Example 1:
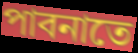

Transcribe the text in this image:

পাবনাতে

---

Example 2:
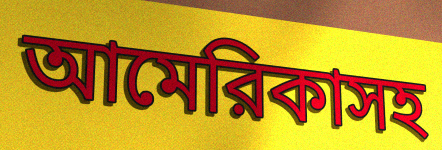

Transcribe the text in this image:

আমেরিকাসহ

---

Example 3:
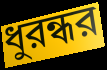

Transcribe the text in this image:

ধুরন্ধর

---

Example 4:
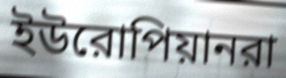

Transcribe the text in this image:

ইউরোপিয়ানরা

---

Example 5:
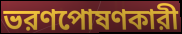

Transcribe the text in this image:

ভরণপোষণকারী